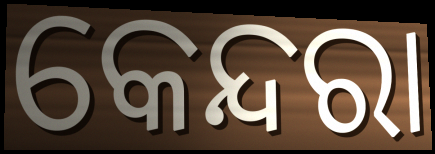
କେନ୍ଦରା